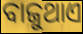
ବାଜୁଥାଏ